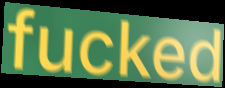
fucked